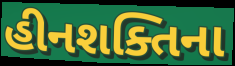
હીનશક્તિના